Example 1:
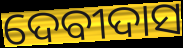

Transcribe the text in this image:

ଦେବୀଦାସ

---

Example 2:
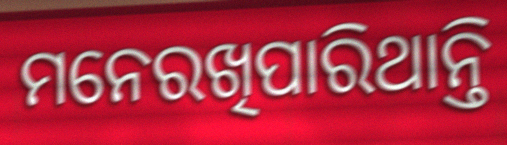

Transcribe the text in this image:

ମନେରଖିପାରିଥାନ୍ତି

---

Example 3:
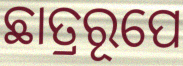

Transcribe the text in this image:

ଛାତ୍ରରୂପେ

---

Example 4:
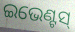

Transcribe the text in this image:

ଇଭେଣ୍ଟସ୍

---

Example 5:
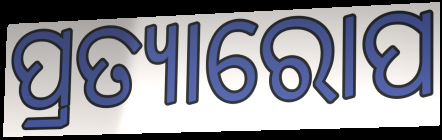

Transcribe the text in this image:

ପ୍ରତ୍ୟାରୋପ